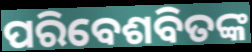
ପରିବେଶବିତଙ୍କ